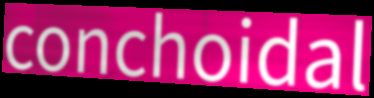
conchoidal